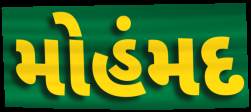
મોહંમદ